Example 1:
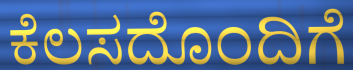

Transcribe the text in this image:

ಕೆಲಸದೊಂದಿಗೆ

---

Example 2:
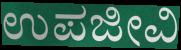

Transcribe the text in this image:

ಉಪಜೀವಿ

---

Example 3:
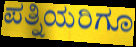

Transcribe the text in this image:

ಪತ್ನಿಯರಿಗೂ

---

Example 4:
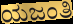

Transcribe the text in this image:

ಯಜಂತಿ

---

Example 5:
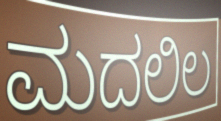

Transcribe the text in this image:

ಮದಲಿಲ